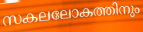
സകലലോകത്തിനും